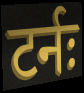
टर्नः